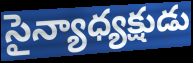
సైన్యాధ్యక్షుడు